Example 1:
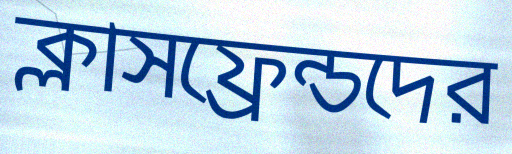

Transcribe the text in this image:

ক্লাসফ্রেন্ডদের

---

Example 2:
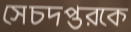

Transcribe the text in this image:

সেচদপ্তরকে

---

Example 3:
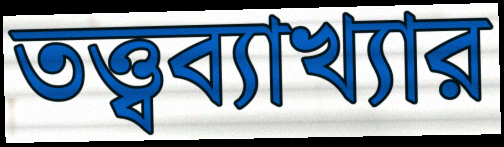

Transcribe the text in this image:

তত্ত্বব্যাখ্যার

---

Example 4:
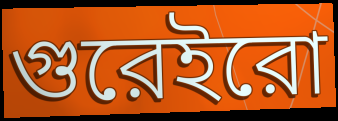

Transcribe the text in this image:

গুরেইরো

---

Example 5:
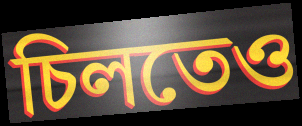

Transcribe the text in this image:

চিলতেও